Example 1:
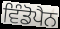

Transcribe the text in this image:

ਵਿੰਡੋਪੈਨ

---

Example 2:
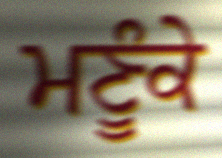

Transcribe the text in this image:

ਮਣੂੰਕੇ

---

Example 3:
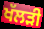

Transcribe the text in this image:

ਖੱਲੜੀ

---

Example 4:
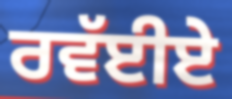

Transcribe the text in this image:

ਰਵੱਈਏ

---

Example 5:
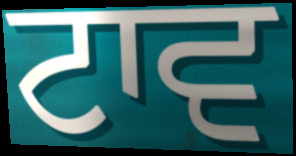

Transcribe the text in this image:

ਟਾਵ